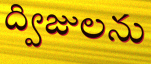
ద్విజులను